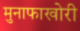
मुनाफाखोरी